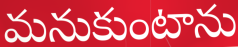
మనుకుంటాను